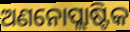
ଅଣନୋପ୍ଲାଷ୍ଟିକ